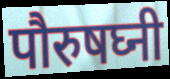
पौरुषघ्नी